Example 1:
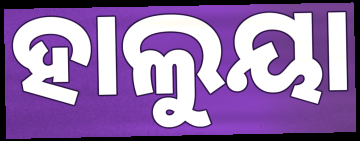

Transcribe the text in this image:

ହାଲୁୟା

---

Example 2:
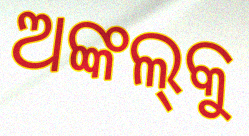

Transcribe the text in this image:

ଅଙ୍କଲ୍‌କୁ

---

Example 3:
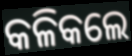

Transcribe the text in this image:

କଳିକଲେ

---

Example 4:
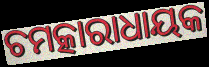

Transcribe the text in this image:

ଚମତ୍କାରାଧାୟକ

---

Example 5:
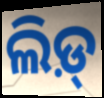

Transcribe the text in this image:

ଲିଡ଼୍